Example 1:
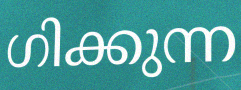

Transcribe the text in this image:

ഗിക്കുന്ന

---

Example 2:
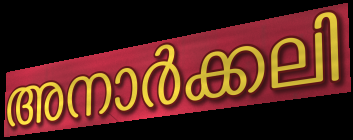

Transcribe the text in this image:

അനാർക്കലി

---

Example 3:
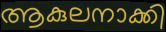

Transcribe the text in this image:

ആകുലനാക്കി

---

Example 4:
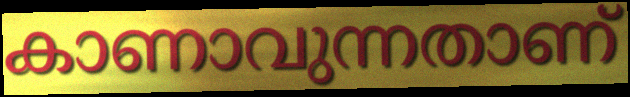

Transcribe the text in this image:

കാണാവുന്നതാണ്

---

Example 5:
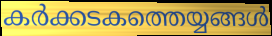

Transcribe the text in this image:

കർക്കടകത്തെയ്യങ്ങൾ